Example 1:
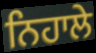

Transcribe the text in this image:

ਨਿਹਾਲੇ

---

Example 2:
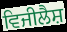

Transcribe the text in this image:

ਵਿਜੀਲੈਸ਼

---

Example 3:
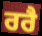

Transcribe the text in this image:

ਰਰੈ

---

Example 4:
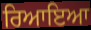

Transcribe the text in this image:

ਰਿਆਇਆ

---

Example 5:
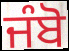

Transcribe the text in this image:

ਜੰਬੋ